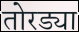
तोरड्या